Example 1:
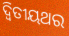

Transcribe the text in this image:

ଦ୍ବିତୀୟଥର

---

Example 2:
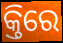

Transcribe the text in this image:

କ୍ତିରେ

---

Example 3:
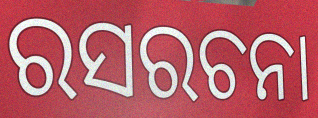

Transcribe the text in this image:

ରସରଚନା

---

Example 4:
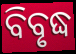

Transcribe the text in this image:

ବିବୃଦ୍ଧ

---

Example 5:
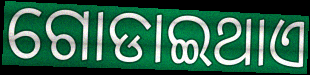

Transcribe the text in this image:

ଗୋଡାଇଥାଏ